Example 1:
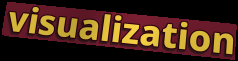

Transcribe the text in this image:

visualization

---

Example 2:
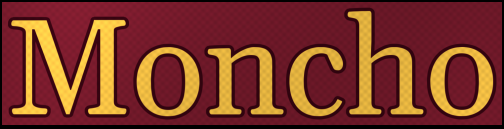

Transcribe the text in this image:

Moncho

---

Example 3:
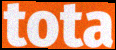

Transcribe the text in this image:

tota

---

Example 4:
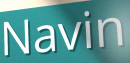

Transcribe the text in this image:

Navin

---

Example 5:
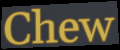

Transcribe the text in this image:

Chew